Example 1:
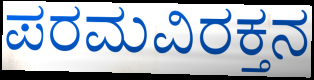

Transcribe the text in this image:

ಪರಮವಿರಕ್ತನ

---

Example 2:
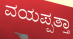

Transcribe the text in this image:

ವಯಪ್ಪತ್ತಾ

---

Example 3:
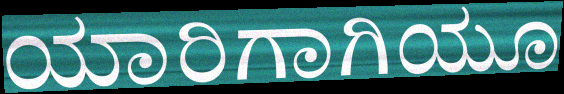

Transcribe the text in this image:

ಯಾರಿಗಾಗಿಯೂ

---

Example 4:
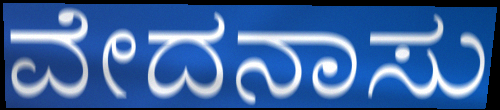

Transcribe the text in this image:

ವೇದನಾಸು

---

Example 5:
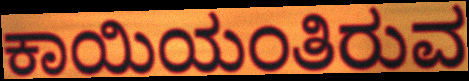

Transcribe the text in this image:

ಕಾಯಿಯಂತಿರುವ